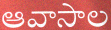
ఆవాసాల